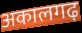
अकालगढ़